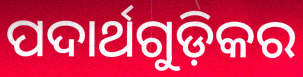
ପଦାର୍ଥଗୁଡ଼ିକର